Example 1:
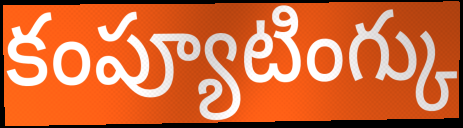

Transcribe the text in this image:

కంప్యూటింగ్కు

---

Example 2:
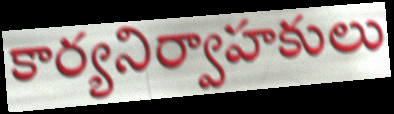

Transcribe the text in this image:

కార్యనిర్వాహకులు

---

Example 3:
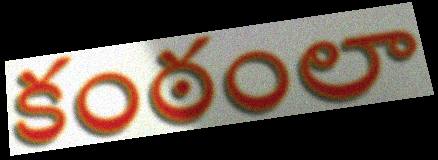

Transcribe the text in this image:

కంఠంలా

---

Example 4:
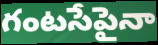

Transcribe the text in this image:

గంటసేపైనా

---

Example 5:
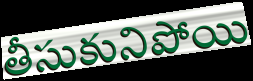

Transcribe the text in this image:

తీసుకునిపోయి